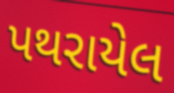
પથરાયેલ